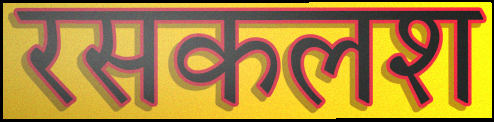
रसकलश